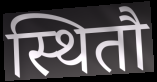
स्थितौ